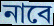
নাবে